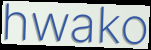
hwako